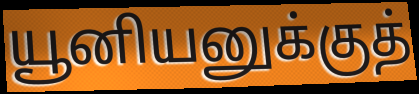
யூனியனுக்குத்